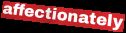
affectionately